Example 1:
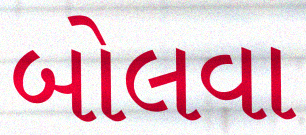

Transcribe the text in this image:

બોલવા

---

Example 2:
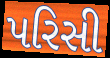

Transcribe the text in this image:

પરિસી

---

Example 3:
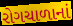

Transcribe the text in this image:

રોગચાળાનાં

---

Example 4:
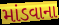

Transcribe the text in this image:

માંડવાના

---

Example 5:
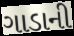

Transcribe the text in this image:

ગાડાની